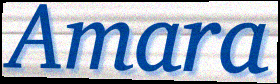
Amara